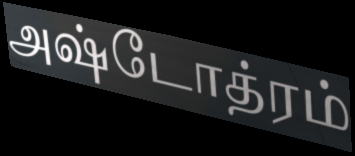
அஷ்டோத்ரம்